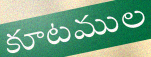
కూటముల